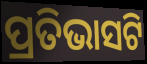
ପ୍ରତିଭାସଟି